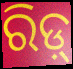
ରିଡ଼୍